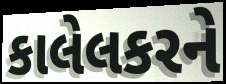
કાલેલકરને